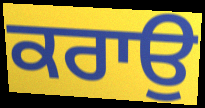
ਕਰਾਉ